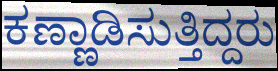
ಕಣ್ಣಾಡಿಸುತ್ತಿದ್ದರು